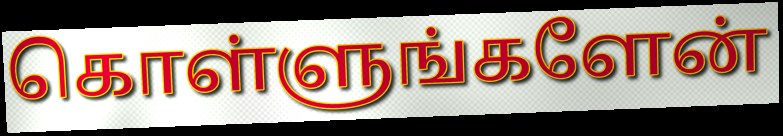
கொள்ளுங்களேன்